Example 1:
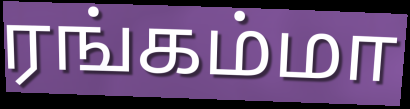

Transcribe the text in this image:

ரங்கம்மா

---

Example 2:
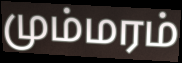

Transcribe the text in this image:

மும்மரம்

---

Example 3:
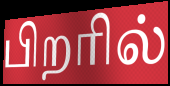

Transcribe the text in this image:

பிறரில்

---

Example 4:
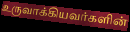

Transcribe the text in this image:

உருவாக்கியவர்களின்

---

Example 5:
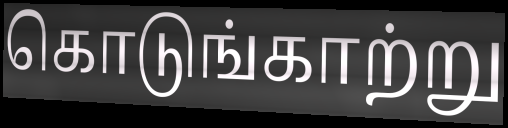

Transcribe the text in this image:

கொடுங்காற்று